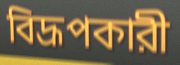
বিদ্রূপকারী